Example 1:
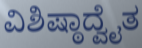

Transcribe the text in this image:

ವಿಶಿಷ್ಠಾದ್ವೈತ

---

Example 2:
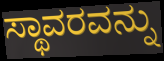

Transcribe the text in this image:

ಸ್ಥಾವರವನ್ನು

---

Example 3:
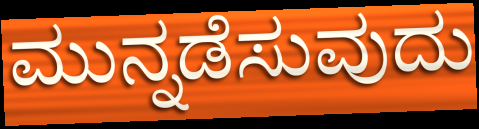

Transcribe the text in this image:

ಮುನ್ನಡೆಸುವುದು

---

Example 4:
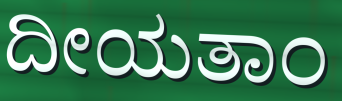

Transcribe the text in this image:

ದೀಯತಾಂ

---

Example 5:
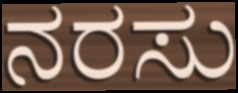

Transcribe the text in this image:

ನರಸು